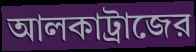
আলকাট্রাজের